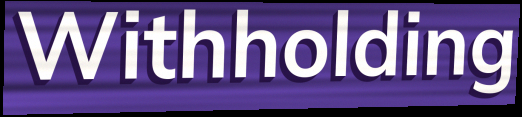
Withholding